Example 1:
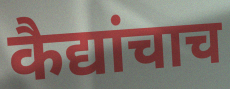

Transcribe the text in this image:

कैद्यांचाच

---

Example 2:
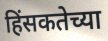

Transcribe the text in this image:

हिंसकतेच्या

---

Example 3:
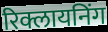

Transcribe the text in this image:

रिक्लायनिंग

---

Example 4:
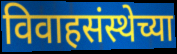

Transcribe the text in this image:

विवाहसंस्थेच्या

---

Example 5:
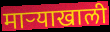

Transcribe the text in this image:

माऱ्याखाली